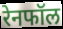
रेनफॉल